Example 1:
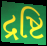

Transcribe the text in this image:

દ્રષ્ટિ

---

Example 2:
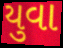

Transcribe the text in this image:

યુવા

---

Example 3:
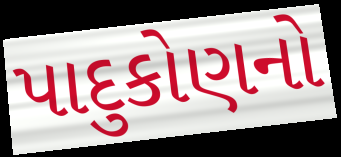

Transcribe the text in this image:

પાદુકોણનો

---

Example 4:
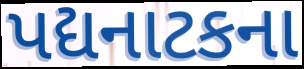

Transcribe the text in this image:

પદ્યનાટકના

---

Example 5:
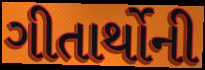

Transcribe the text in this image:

ગીતાર્થોની